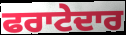
ਫਰਾਟੇਦਾਰ